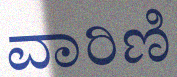
ವಾರಿಣಿ